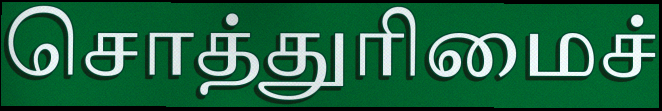
சொத்துரிமைச்